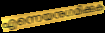
എന്നെയനുഗമിക്കുക